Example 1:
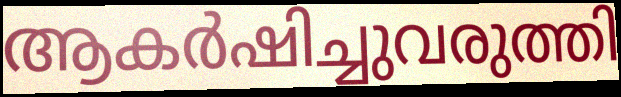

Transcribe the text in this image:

ആകർഷിച്ചുവരുത്തി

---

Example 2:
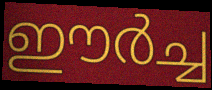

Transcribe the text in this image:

ഈർച്ച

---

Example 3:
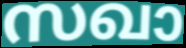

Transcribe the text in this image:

സഖാ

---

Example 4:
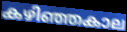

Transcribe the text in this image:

കഴിഞ്ഞകാല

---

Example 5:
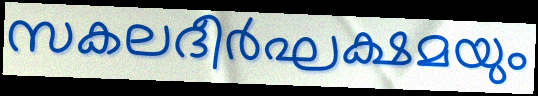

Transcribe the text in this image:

സകലദീർഘക്ഷമയും